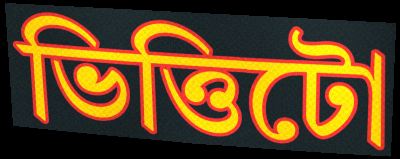
ভিত্তিটো